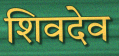
शिवदेव